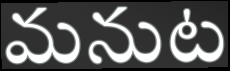
మనుట